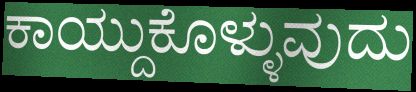
ಕಾಯ್ದುಕೊಳ್ಳುವುದು